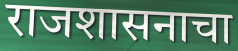
राजशासनाचा